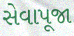
સેવાપૂજા